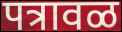
पत्रावळ